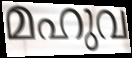
മഹുവ